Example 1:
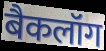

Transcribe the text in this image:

बैकलॉग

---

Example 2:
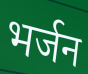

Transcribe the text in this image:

भर्जन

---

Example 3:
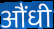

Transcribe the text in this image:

औंधी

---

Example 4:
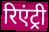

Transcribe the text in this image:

रिएंट्री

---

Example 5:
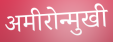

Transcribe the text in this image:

अमीरोन्मुखी